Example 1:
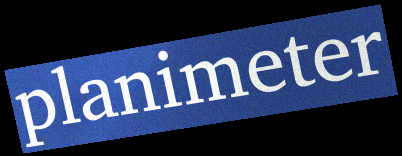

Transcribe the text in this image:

planimeter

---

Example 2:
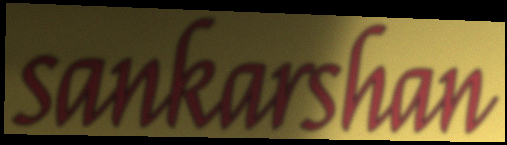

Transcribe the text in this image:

sankarshan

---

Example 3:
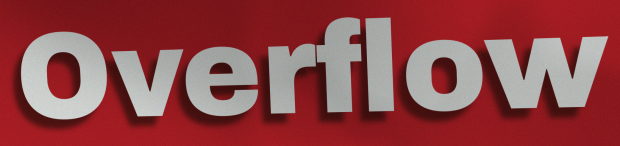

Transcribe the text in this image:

Overflow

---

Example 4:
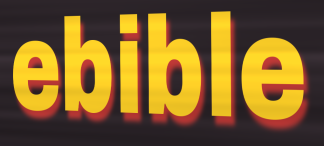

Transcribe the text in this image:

ebible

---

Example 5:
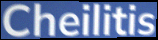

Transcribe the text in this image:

Cheilitis